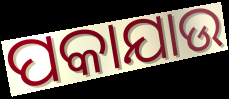
ପକାଯାଉ